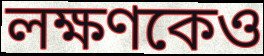
লক্ষণকেও